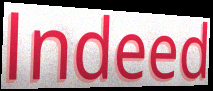
Indeed